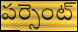
పర్సెంట్